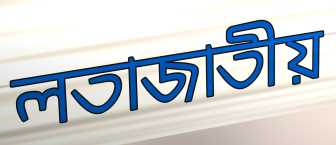
লতাজাতীয়